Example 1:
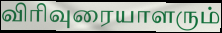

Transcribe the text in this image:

விரிவுரையாளரும்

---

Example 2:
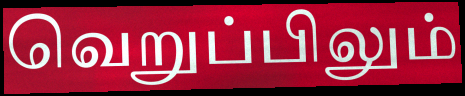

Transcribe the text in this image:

வெறுப்பிலும்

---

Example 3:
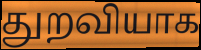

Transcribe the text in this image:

துறவியாக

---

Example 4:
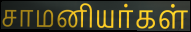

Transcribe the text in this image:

சாமனியர்கள்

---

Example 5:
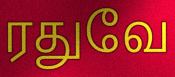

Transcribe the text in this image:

ரதுவே